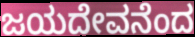
ಜಯದೇವನೆಂದ